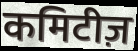
कमिटीज़